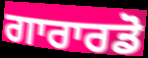
ਗਾਰਾਰਡੋ